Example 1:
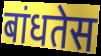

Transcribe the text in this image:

बांधतेस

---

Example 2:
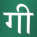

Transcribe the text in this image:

गी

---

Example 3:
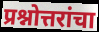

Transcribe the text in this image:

प्रश्नोत्तरांचा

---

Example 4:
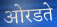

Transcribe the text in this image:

ओरडते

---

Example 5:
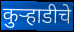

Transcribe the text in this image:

कुऱ्हाडीचे